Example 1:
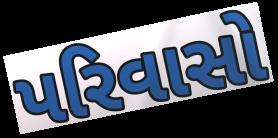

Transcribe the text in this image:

પરિવાસો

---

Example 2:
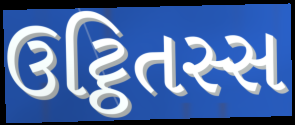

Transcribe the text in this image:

ઉટ્ઠિતસ્સ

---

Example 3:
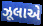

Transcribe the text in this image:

ઝૂલાએ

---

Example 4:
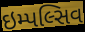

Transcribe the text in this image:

ઇમ્પલ્સિવ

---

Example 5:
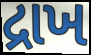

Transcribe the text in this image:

દ્રાખ